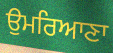
ਉਮਰਿਆਣਾ